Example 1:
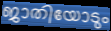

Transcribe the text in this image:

ജാതിയോടും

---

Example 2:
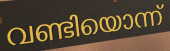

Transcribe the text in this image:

വണ്ടിയൊന്ന്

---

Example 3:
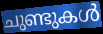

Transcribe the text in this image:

ചുണ്ടുകൾ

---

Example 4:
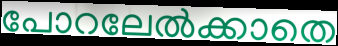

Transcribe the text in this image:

പോറലേൽക്കാതെ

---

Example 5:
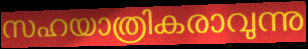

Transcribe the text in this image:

സഹയാത്രികരാവുന്നു